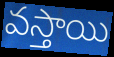
వస్తాయి